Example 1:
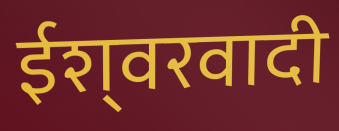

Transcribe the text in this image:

ईश्वरवादी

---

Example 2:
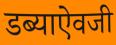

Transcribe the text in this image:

डब्याऐवजी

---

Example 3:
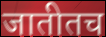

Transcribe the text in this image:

जातीतच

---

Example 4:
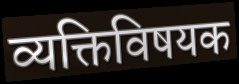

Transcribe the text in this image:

व्यक्तिविषयक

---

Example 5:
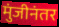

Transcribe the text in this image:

मुंजीनंतर